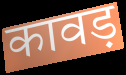
कावड़